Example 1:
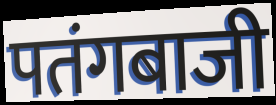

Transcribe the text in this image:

पतंगबाजी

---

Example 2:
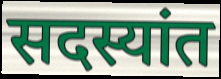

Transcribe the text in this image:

सदस्यांत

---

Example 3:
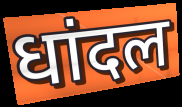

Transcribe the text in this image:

धांदल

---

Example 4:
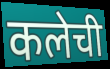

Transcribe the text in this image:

कलेची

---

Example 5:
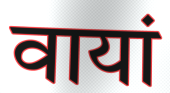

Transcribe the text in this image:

वायां